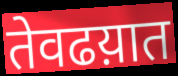
तेवढय़ात